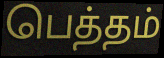
பெத்தம்